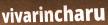
vivarincharu